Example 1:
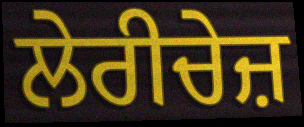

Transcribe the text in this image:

ਲੇਰੀਚੇਜ਼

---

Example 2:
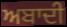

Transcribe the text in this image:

ਅਬਾਦੀ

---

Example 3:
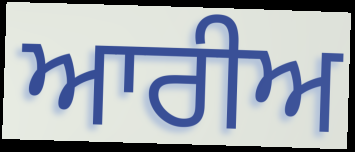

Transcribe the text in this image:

ਆਰੀਅ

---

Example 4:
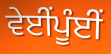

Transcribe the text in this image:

ਵੇਈਂਪੂੰਈਂ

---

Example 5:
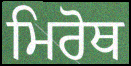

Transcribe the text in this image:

ਮਿਰੋਥ